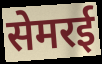
सेमरई